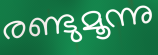
രണ്ടുമൂന്നു